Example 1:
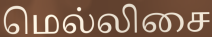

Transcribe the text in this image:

மெல்லிசை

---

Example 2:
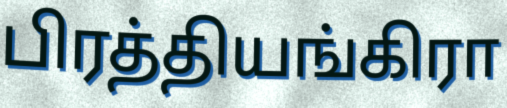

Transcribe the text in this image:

பிரத்தியங்கிரா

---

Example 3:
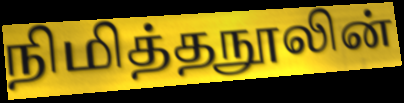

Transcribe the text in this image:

நிமித்தநூலின்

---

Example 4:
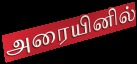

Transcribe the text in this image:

அரையினில்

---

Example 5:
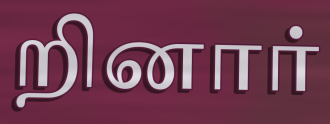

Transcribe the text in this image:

றினார்